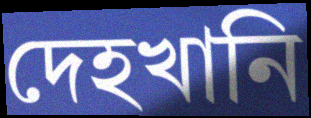
দেহখানি